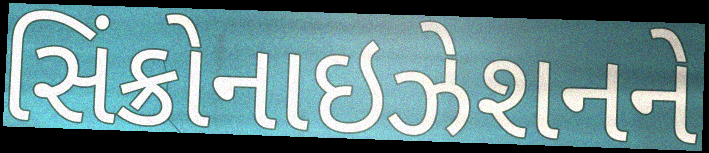
સિંક્રોનાઇઝેશનને